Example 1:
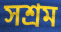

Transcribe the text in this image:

সশ্রম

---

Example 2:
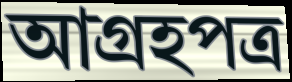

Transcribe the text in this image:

আগ্রহপত্র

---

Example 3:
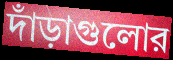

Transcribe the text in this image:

দাঁড়াগুলোর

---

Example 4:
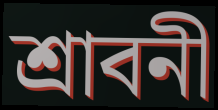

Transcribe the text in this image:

শ্রাবনী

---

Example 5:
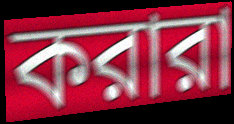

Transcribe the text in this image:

করারা